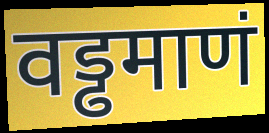
वड्ढमाणं